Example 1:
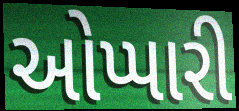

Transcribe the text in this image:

ઓપ્પારી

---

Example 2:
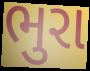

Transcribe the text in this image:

ભુરા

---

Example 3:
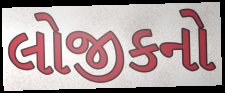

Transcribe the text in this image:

લોજીકનો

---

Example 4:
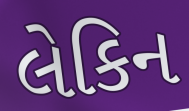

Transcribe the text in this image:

લેકિન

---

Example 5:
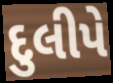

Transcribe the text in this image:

દુલીપે